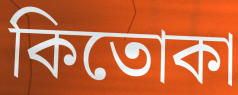
কিতোকা